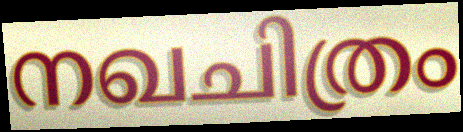
നഖചിത്രം